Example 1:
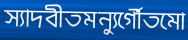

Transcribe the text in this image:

স্যাদবীতমন্যুর্গৌতমো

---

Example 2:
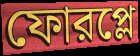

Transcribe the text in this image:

ফোরপ্লে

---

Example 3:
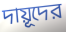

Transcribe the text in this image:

দায়ূদের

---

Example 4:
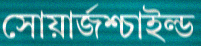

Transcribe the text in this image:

সোয়ার্জশ্চাইল্ড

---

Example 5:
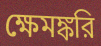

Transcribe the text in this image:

ক্ষেমঙ্করি